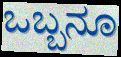
ಒಬ್ಬನೂ